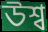
উশ্ব